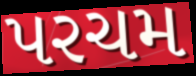
પરચમ